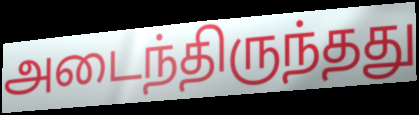
அடைந்திருந்தது